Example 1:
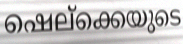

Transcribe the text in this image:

ഷെല്ക്കെയുടെ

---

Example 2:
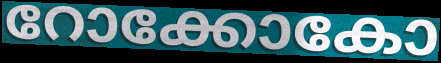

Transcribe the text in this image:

റോക്കോകോ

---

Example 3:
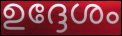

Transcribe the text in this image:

ഉദ്ദേശം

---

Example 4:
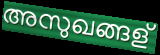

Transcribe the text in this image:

അസുഖങ്ങള്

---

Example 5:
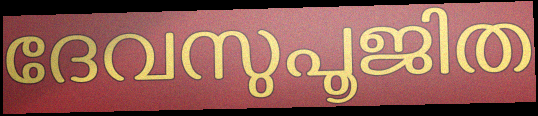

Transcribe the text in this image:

ദേവസുപൂജിത